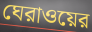
ঘেরাওয়ের